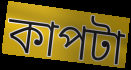
কাপটা